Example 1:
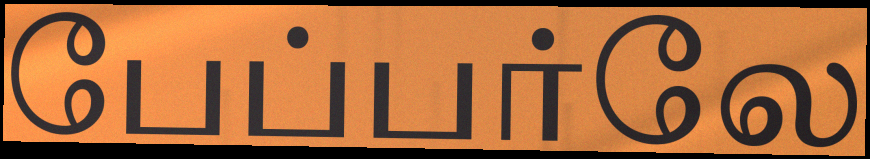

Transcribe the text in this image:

பேப்பர்லே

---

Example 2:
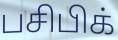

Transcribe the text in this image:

பசிபிக்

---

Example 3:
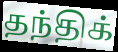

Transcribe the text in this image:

தந்திக்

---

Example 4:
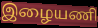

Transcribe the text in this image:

இழையணி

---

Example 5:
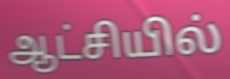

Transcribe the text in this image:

ஆட்சியில்